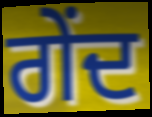
ਗੇਂਦ